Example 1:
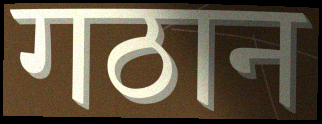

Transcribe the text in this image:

गठान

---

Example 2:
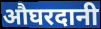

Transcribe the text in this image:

औघरदानी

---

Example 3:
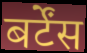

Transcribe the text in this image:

बर्टेंस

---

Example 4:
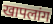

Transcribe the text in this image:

खापलांग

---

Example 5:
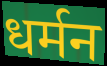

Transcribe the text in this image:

धर्मन